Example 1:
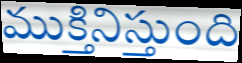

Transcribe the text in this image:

ముక్తినిస్తుంది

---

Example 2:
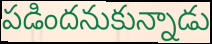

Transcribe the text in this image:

పడిందనుకున్నాడు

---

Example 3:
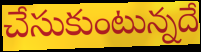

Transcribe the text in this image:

చేసుకుంటున్నదే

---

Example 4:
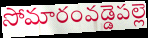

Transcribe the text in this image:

సోమారంవడ్డెపల్లె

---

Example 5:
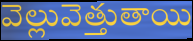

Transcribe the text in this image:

వెల్లువెత్తుతాయి